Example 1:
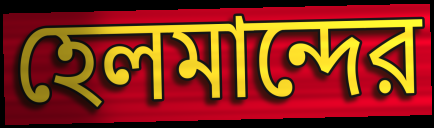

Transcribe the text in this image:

হেলমান্দের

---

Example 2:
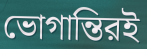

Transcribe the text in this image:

ভোগান্তিরই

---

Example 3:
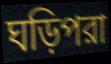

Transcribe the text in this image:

ঘড়িপরা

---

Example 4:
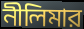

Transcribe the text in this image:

নীলিমার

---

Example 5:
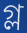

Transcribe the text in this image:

গ্ল